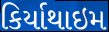
કિર્યાથાઇમ